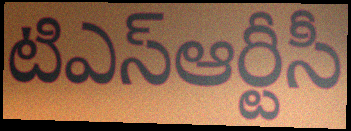
టిఎస్ఆర్టీసీ